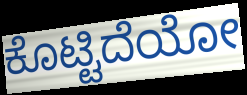
ಕೊಟ್ಟಿದೆಯೋ